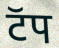
टॅप